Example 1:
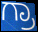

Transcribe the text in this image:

ಗ್ರಾ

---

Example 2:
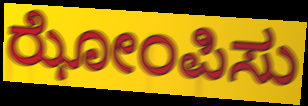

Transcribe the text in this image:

ಝೋಂಪಿಸು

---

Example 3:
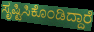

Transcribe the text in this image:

ಸೃಷ್ಟಿಸಿಕೊಂಡಿದ್ದಾರೆ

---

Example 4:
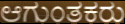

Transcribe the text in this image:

ಆಗುಂತಕರು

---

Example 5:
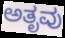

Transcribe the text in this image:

ಅತೃವು